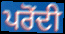
ਪਰੋਂਦੀ